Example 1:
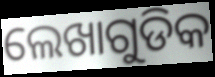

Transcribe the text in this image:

ଲେଖାଗୁଡିକ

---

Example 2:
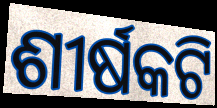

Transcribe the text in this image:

ଶୀର୍ଷକଟି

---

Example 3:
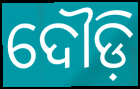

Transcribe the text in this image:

ଦୌଡ଼ି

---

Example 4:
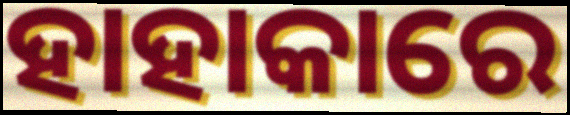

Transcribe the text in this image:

ହାହାକାରେ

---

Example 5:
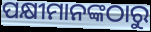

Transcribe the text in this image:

ପକ୍ଷୀମାନଙ୍କଠାରୁ